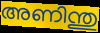
അണിന്തു